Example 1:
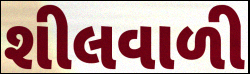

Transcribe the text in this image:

શીલવાળી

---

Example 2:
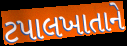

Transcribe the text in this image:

ટપાલખાતાને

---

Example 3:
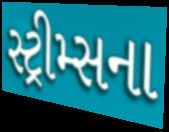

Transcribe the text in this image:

સ્ટ્રીમ્સના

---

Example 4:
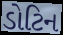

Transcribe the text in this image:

ડોટિન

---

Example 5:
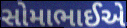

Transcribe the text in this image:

સોમાભાઈએ